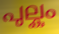
പുല്കും